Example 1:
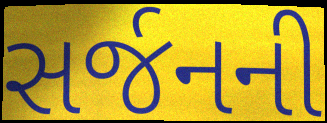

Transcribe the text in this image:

સર્જનની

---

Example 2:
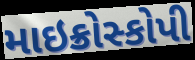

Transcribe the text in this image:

માઇક્રોસ્કોપી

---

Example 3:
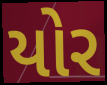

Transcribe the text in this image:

યોર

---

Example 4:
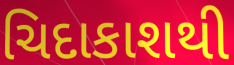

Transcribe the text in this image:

ચિદાકાશથી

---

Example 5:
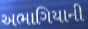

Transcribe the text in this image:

અભાગિયાની